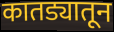
कातड्यातून